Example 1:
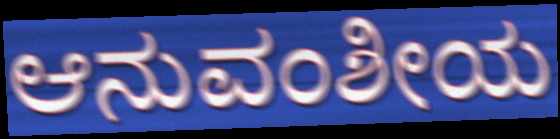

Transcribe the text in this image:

ಆನುವಂಶೀಯ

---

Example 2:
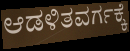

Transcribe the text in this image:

ಆಡಳಿತವರ್ಗಕ್ಕೆ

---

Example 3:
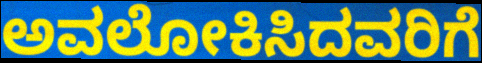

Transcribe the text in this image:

ಅವಲೋಕಿಸಿದವರಿಗೆ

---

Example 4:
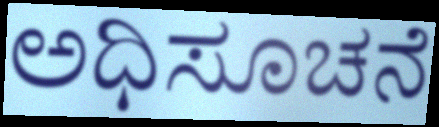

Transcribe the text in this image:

ಅಧಿಸೂಚನೆ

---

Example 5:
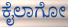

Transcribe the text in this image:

ಕೈಲಾಗೋ